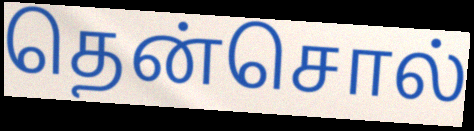
தென்சொல்